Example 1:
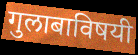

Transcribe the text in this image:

गुलाबाविषयी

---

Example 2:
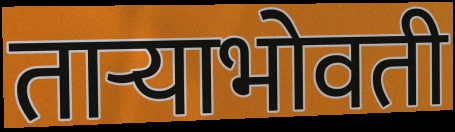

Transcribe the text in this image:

ताऱ्याभोवती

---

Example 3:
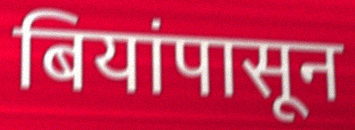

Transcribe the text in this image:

बियांपासून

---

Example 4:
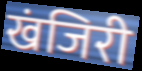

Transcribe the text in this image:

खंजिरी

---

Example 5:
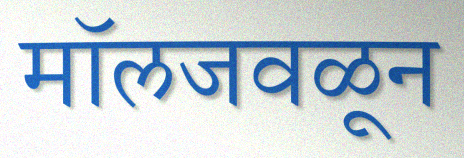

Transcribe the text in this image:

मॉलजवळून